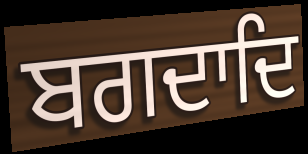
ਬਗਦਾਦਿ